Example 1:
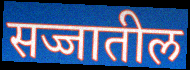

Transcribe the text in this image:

सज्जातील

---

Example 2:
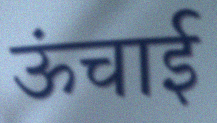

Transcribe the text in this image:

ऊंचाई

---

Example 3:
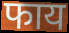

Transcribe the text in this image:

फाय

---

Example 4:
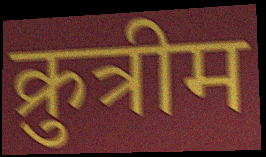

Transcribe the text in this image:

क्रुत्रीम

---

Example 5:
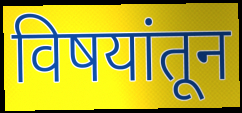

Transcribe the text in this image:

विषयांतून